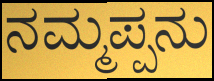
ನಮ್ಮಪ್ಪನು